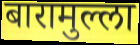
बारामुल्ला